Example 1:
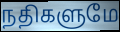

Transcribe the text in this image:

நதிகளுமே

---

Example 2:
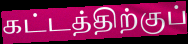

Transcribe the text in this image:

கட்டத்திற்குப்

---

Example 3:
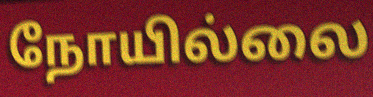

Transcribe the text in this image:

நோயில்லை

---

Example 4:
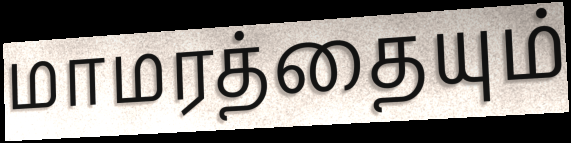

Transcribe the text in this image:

மாமரத்தையும்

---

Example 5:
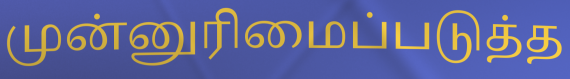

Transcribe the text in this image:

முன்னுரிமைப்படுத்த